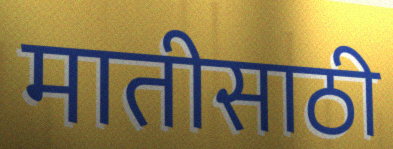
मातीसाठी